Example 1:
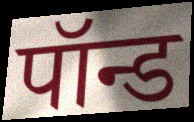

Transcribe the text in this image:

पॉन्ड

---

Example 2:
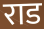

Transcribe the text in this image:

राड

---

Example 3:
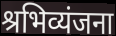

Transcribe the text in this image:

श्रभिव्यंजना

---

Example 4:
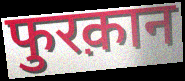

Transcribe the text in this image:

फुरक़ान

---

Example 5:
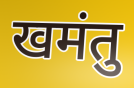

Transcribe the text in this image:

खमंतु